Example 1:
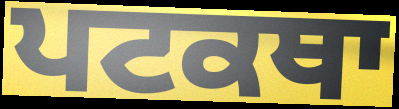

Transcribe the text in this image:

ਪਟਕਥਾ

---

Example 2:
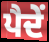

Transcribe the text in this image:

ਪੈਦੇਂ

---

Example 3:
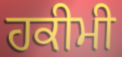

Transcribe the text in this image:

ਹਕੀਮੀ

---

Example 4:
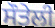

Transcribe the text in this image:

ਸੌਤੇਲੀ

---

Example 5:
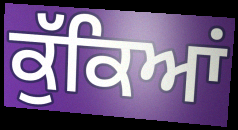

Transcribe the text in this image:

ਕੁੱਕਿਆਂ